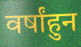
वर्षांहुन